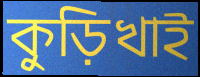
কুড়িখাই